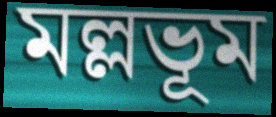
মল্লভূম